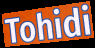
Tohidi